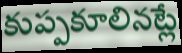
కుప్పకూలినట్లే